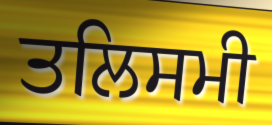
ਤਲਿਸਮੀ